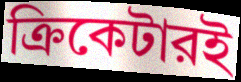
ক্রিকেটারই